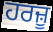
ਹਰਜ਼ੂ